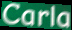
Carla